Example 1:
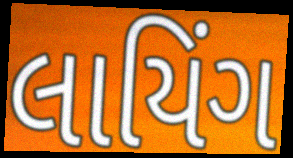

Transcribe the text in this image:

લાયિંગ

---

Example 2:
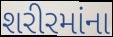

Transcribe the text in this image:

શરીરમાંના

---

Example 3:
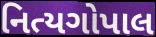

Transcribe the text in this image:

નિત્યગોપાલ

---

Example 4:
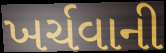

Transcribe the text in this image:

ખર્ચવાની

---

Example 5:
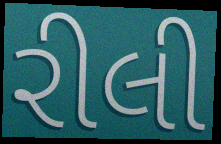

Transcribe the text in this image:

રીલી